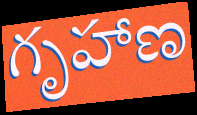
గృహాణ